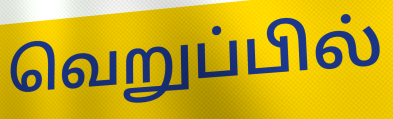
வெறுப்பில்